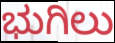
ಭುಗಿಲು